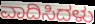
ವಾದಿಸಿದಳು